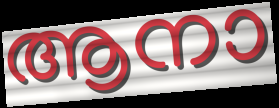
ആനാ